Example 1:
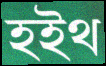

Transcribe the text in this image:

হইথ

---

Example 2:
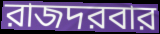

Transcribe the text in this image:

রাজদরবার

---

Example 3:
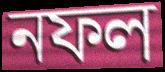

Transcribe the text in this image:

নফল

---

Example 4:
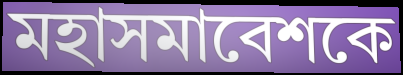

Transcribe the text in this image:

মহাসমাবেশকে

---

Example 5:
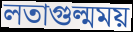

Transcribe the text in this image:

লতাগুল্মময়